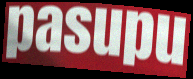
pasupu